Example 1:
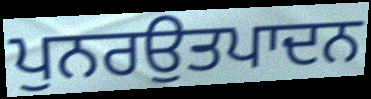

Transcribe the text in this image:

ਪੁਨਰਉਤਪਾਦਨ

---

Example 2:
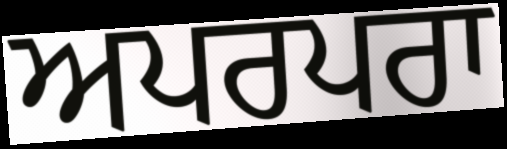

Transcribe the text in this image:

ਅਪਰਪਰਾ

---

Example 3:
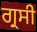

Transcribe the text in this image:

ਗ੍ਰਸੀ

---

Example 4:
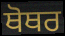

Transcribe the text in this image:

ਥੋਥਰ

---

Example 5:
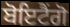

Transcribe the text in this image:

ਬੋਇਟੈਂਗੋ